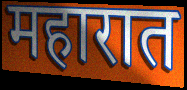
महारात